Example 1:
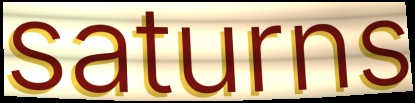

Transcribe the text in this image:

saturns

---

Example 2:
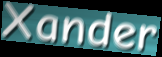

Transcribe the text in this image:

Xander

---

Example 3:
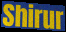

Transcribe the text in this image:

Shirur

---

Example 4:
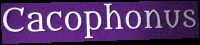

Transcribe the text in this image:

Cacophonus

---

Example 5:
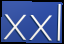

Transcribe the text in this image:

xxl